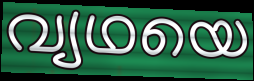
വ്യഥയെ